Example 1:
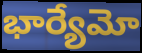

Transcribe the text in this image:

భార్యేమో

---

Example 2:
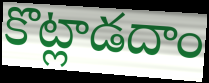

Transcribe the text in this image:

కొట్లాడదాం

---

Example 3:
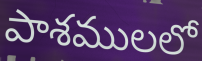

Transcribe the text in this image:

పాశములలో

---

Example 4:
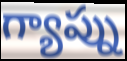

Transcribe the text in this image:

గ్యాప్ను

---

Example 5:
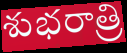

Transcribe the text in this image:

శుభరాత్రి